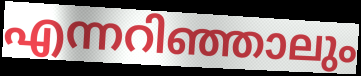
എന്നറിഞ്ഞാലും